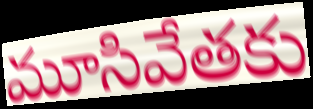
మూసివేతకు